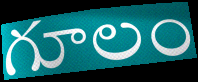
గూలం